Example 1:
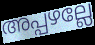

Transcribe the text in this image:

അപ്പഴല്ലേ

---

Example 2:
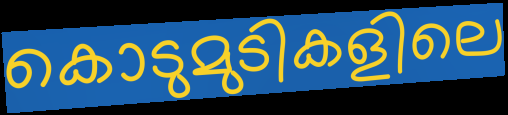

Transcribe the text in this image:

കൊടുമുടികളിലെ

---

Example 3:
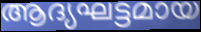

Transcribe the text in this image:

ആദ്യഘട്ടമായ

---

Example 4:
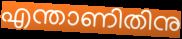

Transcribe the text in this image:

എന്താണിതിനു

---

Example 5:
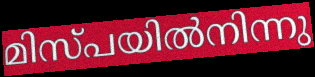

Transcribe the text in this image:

മിസ്പയിൽനിന്നു